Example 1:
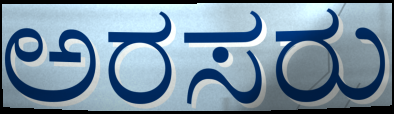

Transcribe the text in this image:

ಅರಸರು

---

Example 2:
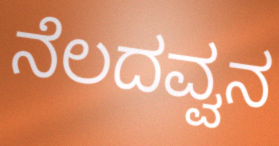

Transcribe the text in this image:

ನೆಲದವ್ವನ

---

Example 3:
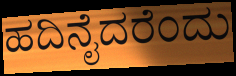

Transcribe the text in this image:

ಹದಿನೈದರೆಂದು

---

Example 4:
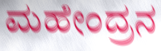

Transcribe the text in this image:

ಮಹೇಂದ್ರನ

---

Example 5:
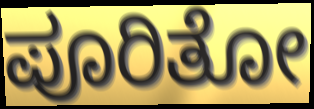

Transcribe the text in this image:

ಪೂರಿತೋ